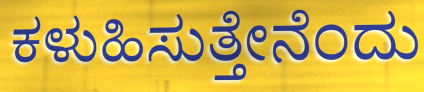
ಕಳುಹಿಸುತ್ತೇನೆಂದು